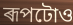
ৰূপটোও